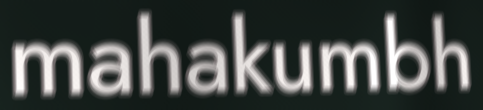
mahakumbh